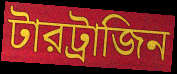
টারট্রাজিন